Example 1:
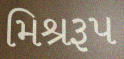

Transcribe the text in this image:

મિશ્રરૂપ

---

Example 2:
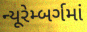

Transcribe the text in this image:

ન્યૂરેમ્બર્ગમાં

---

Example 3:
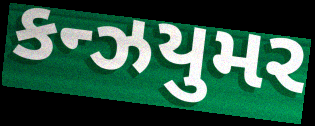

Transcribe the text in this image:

કન્ઝયુમર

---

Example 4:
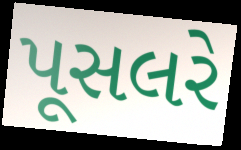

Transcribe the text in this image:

પૂસલરે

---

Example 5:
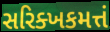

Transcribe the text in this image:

સરિક્ખકમત્તં